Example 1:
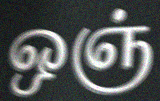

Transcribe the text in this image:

ஒஞ்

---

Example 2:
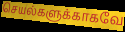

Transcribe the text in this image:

செயல்களுக்காகவே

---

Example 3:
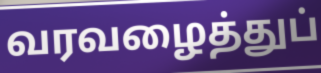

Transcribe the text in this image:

வரவழைத்துப்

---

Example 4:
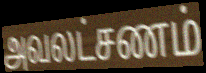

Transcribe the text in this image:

அவலட்சணம்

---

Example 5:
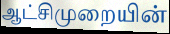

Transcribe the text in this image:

ஆட்சிமுறையின்